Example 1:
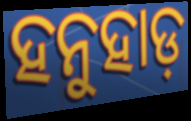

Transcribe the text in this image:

ହନୁହାଡ଼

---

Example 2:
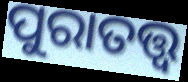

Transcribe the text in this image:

ପୁରାତତ୍ତ୍ୱ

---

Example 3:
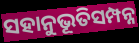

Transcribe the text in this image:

ସହାନୁଭୂତିସମ୍ପନ୍ନ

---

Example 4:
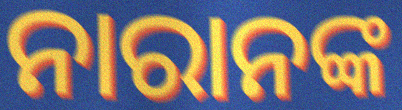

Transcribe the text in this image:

ନାରାନଙ୍କ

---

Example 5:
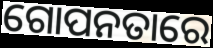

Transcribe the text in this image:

ଗୋପନତାରେ